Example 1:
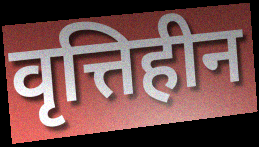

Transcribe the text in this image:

वृत्तिहीन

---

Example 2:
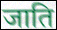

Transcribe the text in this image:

जाति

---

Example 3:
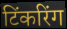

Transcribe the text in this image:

टिंकरिंग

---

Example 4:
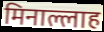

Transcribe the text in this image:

मिनाल्लाह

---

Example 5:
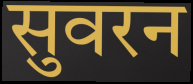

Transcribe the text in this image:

सुवरन